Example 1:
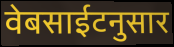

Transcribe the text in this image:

वेबसाईटनुसार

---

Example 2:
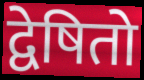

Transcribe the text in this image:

द्वेषितो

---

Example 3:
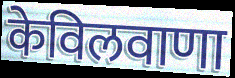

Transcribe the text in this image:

केविलवाणा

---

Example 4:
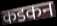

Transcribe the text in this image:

कडकन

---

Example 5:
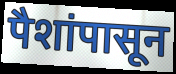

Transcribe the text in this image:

पैशांपासून